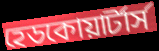
হেডকোয়ার্টার্স